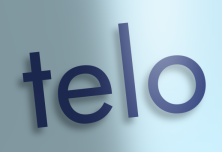
telo